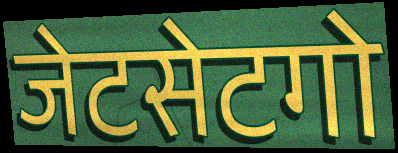
जेटसेटगो